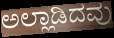
ಅಲ್ಲಾಡಿದವು